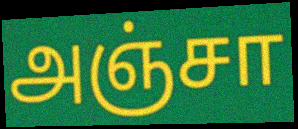
அஞ்சா